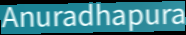
Anuradhapura